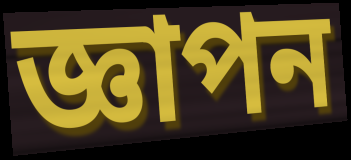
জ্ঞাপন